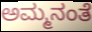
ಅಮ್ಮನಂತೆ